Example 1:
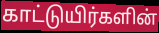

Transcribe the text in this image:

காட்டுயிர்களின்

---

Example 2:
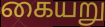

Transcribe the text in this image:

கையறு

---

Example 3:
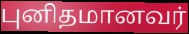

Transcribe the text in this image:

புனிதமானவர்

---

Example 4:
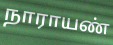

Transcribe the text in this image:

நாராயண்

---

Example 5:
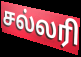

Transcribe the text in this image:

சல்லரி